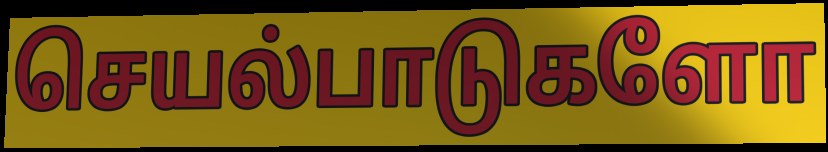
செயல்பாடுகளோ